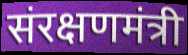
संरक्षणमंत्री